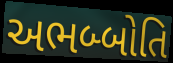
અભબ્બોતિ